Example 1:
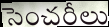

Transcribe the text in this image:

సెంచరీలు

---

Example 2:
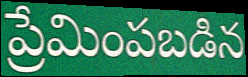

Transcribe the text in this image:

ప్రేమింపబడిన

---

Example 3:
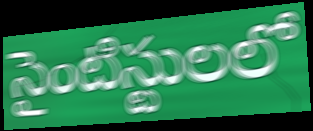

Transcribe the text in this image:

సైంటిస్టులలో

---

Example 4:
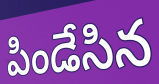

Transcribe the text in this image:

పిండేసిన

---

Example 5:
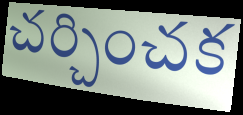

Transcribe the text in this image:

చర్చించక